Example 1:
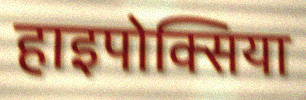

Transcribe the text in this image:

हाइपोक्सिया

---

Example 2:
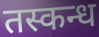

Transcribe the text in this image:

तस्कन्ध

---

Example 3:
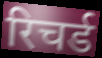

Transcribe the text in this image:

रिचर्ड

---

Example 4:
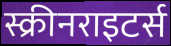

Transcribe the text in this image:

स्क्रीनराइटर्स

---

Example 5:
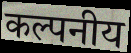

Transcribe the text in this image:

कल्पनीय